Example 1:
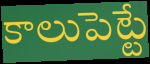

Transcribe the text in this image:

కాలుపెట్టే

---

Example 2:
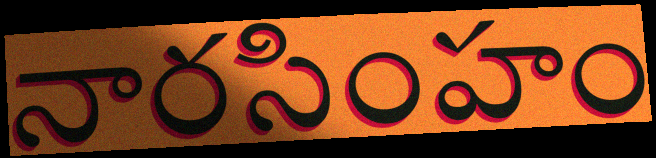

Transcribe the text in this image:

నారసింహం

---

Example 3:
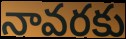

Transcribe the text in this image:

నావరకు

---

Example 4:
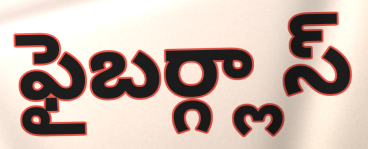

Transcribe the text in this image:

ఫైబర్గ్లాస్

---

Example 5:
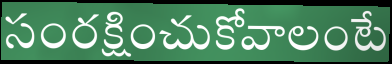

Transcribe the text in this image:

సంరక్షించుకోవాలంటే